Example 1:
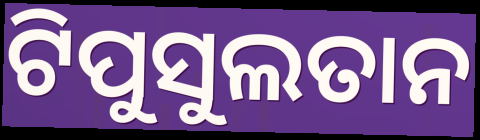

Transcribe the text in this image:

ଟିପୁସୁଲତାନ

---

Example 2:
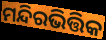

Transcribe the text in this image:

ମନ୍ଦିରଭିତ୍ତିକ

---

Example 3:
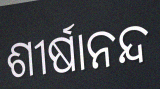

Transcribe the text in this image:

ଶୀର୍ଷାନନ୍ଦ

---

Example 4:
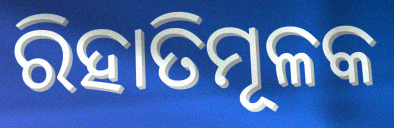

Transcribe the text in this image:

ରିହାତିମୂଳକ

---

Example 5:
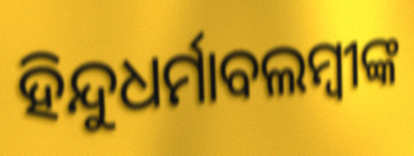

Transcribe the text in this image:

ହିନ୍ଦୁଧର୍ମାବଲମ୍ବୀଙ୍କ